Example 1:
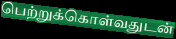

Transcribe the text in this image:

பெற்றுக்கொள்வதுடன்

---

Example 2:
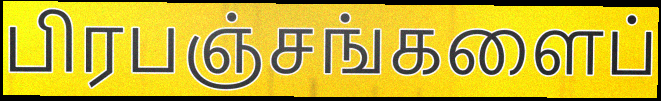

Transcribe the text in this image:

பிரபஞ்சங்களைப்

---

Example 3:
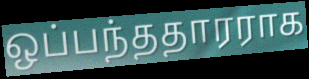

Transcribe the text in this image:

ஒப்பந்ததாரராக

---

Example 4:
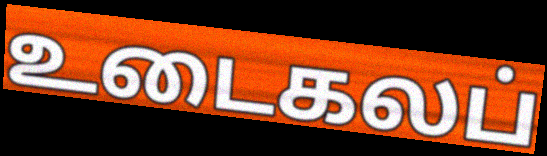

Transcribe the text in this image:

உடைகலப்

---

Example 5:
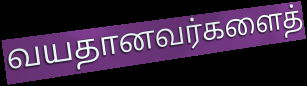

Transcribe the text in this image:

வயதானவர்களைத்